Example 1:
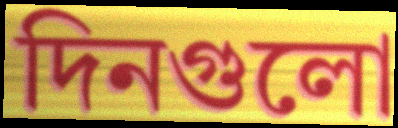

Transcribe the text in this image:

দিনগুলো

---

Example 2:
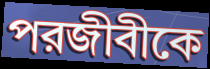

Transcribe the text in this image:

পরজীবীকে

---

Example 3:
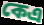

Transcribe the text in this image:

কেএ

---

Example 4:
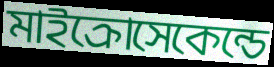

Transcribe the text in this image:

মাইক্রোসেকেন্ডে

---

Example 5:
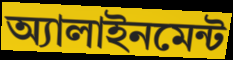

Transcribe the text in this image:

অ্যালাইনমেন্ট